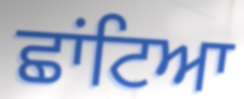
ਛਾਂਟਿਆ